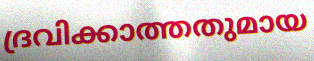
ദ്രവിക്കാത്തതുമായ